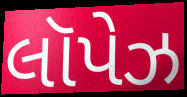
લૉપેઝ